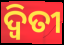
ଦ୍ୱିତୀ